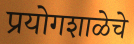
प्रयोगशाळेचे